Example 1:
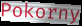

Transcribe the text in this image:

Pokorny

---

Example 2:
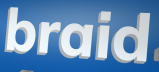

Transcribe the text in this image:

braid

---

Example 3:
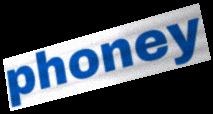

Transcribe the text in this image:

phoney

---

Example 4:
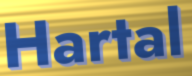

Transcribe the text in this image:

Hartal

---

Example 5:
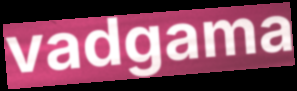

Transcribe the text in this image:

vadgama